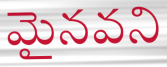
మైనవని